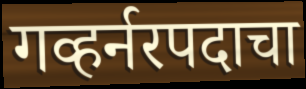
गव्हर्नरपदाचा